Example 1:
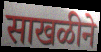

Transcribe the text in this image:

साखळीने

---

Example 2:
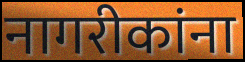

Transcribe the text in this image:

नागरीकांना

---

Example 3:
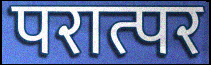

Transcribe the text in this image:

परात्पर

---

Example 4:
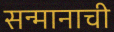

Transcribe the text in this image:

सन्मानाची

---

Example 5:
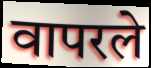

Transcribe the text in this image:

वापरले